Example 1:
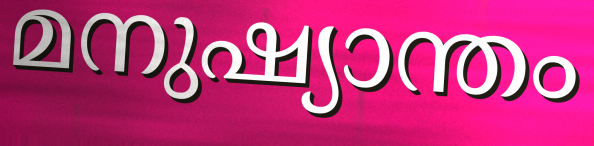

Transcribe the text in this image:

മനുഷ്യാന്തം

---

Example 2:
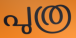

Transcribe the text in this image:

പുത്ര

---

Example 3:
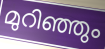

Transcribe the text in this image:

മുറിഞ്ഞും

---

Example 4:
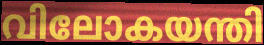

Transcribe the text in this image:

വിലോകയന്തി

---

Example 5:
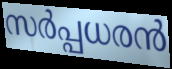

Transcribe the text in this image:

സർപ്പധരൻ